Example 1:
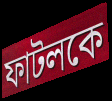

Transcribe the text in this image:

ফাটলকে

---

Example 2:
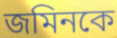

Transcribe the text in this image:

জমিনকে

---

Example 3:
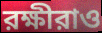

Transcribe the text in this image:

রক্ষীরাও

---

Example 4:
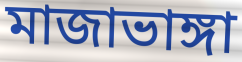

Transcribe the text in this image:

মাজাভাঙ্গা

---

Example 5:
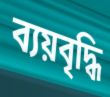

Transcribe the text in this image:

ব্যয়বৃদ্ধি